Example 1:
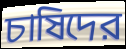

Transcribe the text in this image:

চাষিদের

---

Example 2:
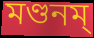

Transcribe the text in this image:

মণ্ডনম্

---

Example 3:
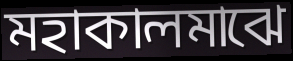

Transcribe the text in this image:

মহাকালমাঝে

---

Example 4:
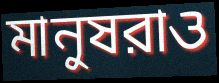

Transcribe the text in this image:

মানুষরাও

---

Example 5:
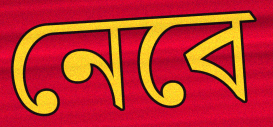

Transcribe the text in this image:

নেবে